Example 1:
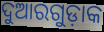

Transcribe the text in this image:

ଦୁଆରଗୁଡ଼ାକ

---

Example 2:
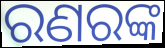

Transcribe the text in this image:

ରଣରଙ୍କ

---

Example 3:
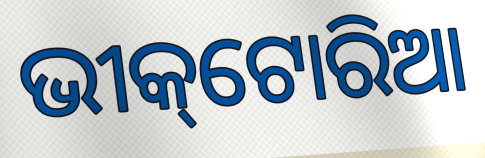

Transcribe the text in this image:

ଭୀକ୍‌ଟୋରିଆ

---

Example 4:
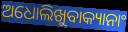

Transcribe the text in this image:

ଅଧୋଲିଖୁବାକ୍ୟାନାଂ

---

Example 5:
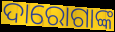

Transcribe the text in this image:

ଦାରୋଗାଙ୍କ